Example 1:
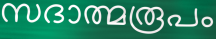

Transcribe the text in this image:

സദാത്മരൂപം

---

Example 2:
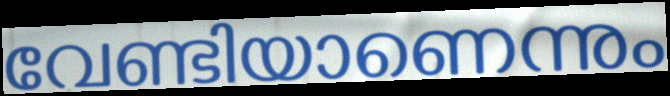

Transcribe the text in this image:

വേണ്ടിയാണെന്നും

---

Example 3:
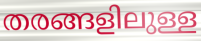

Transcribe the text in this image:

തരങ്ങളിലുള്ള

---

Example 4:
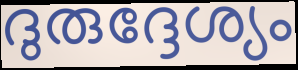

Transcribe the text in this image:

ദുരുദ്ദേശ്യം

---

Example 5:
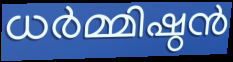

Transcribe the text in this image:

ധർമ്മിഷ്ഠൻ